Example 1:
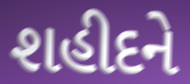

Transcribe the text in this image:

શહીદને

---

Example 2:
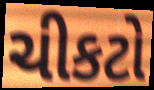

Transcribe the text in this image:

ચીકટો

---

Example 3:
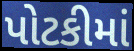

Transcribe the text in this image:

પોટકીમાં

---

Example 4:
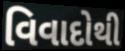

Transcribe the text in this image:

વિવાદોથી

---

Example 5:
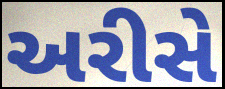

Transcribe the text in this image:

અરીસે